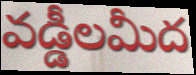
వడ్డీలమీద